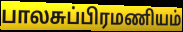
பாலசுப்பிரமணியம்